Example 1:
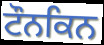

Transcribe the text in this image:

ਟੌਨਕਿਨ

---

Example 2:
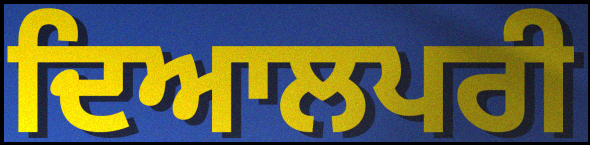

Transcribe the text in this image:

ਦਿਆਲਪਰੀ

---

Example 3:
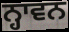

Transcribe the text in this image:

ਨ੍ਹਾਵਨ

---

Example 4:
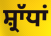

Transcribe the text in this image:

ਸ਼੍ਰਾੱਧਾਂ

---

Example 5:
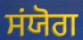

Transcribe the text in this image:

ਸਂਯੋਗ